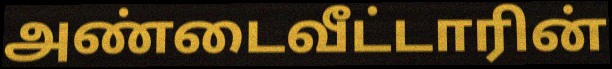
அண்டைவீட்டாரின்